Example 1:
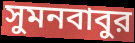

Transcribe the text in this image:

সুমনবাবুর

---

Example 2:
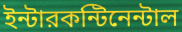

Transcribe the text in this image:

ইন্টারকন্টিনেন্টাল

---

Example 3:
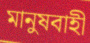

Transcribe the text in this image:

মানুষবাহী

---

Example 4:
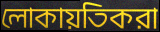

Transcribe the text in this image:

লোকায়তিকরা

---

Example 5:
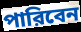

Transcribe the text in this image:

পারিবেন